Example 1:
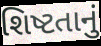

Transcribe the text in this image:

શિષ્ટતાનું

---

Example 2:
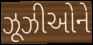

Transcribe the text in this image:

ઝૂઝીઓને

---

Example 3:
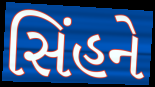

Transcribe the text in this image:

સિંહને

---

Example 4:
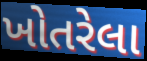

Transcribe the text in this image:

ખોતરેલા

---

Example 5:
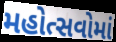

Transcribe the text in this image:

મહોત્સવોમાં